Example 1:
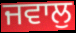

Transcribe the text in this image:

ਜਵਾਲੁ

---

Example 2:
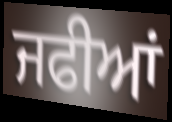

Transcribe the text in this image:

ਜਫੀਆਂ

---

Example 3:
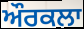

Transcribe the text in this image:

ਔਰਕਲਾ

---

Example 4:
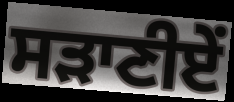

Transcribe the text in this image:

ਸੜਾਣੀਏਂ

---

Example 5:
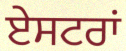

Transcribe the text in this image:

ਏਸਟਰਾਂ